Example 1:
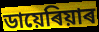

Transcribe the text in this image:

ডায়েৰিয়াৰ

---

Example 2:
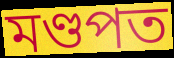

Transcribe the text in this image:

মণ্ডপত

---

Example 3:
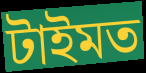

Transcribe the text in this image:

টাইমত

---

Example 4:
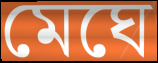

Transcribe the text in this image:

মেঘে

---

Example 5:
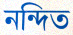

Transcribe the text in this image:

নন্দিত